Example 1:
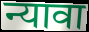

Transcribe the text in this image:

न्यावा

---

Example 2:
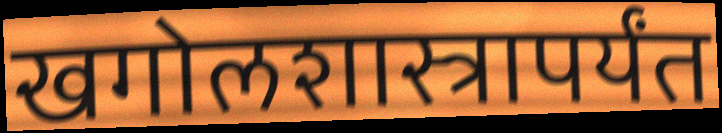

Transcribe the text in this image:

खगोलशास्त्रापर्यंत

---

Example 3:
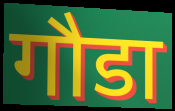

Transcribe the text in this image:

गौडा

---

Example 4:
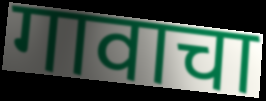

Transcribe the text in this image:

गावाचा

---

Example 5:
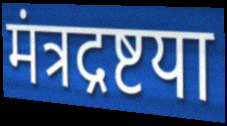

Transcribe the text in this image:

मंत्रद्रष्टया